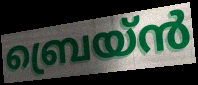
ബ്രെയ്ൻ